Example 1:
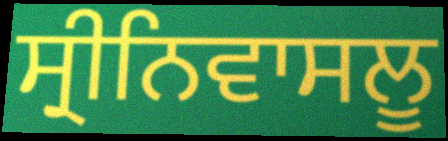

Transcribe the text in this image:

ਸ੍ਰੀਨਿਵਾਸਲੂ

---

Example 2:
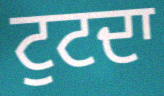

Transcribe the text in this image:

ਟੁਟਦਾ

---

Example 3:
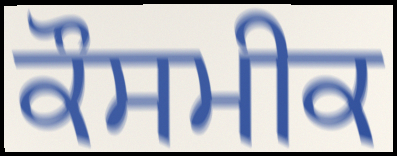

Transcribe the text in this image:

ਕੌਸਮੀਕ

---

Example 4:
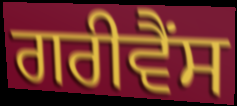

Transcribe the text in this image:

ਗਰੀਵੈਂਸ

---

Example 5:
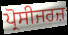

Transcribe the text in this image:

ਪ੍ਰੋਸੀਜਰਜ਼